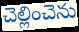
చెల్లించెను